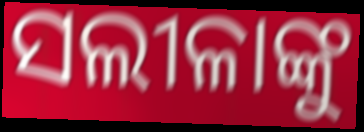
ସଲୀଳାଙ୍କୁ